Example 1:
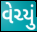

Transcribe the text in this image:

વેચ્યું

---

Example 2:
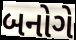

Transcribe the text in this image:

બનોગે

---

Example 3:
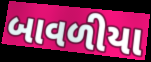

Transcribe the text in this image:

બાવળીયા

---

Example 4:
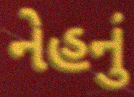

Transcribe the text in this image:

નેહનું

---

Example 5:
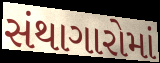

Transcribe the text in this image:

સંથાગારોમાં